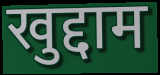
खुद्दाम